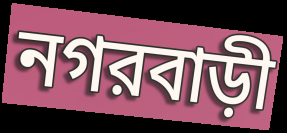
নগরবাড়ী